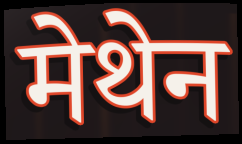
मेथेन